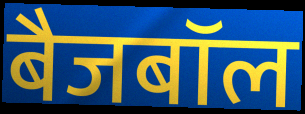
बैजबॉल